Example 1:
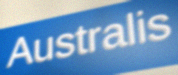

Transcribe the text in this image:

Australis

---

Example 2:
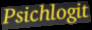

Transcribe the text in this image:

Psichlogit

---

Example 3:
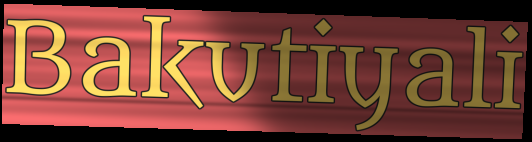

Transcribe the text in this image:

Bakutiyali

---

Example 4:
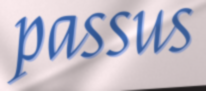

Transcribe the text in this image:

passus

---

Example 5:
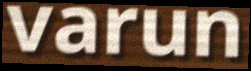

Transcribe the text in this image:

varun